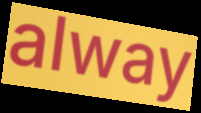
alway